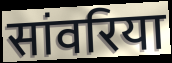
सांवरिया